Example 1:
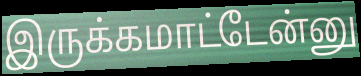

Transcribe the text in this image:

இருக்கமாட்டேன்னு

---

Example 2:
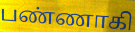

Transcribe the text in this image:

பண்ணாகி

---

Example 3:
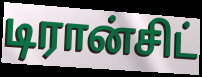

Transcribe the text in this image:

டிரான்சிட்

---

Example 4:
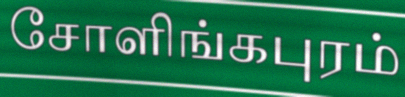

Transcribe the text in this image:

சோளிங்கபுரம்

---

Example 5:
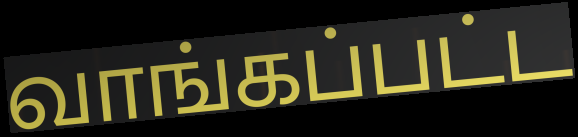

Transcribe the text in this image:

வாங்கப்பட்ட